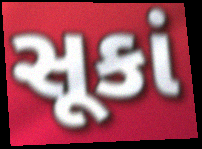
સૂકાં